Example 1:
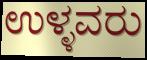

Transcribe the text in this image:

ಉಳ್ಳವರು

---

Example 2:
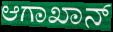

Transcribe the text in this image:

ಆಗಾಖಾನ್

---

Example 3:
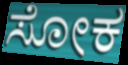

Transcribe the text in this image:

ಸೋಕ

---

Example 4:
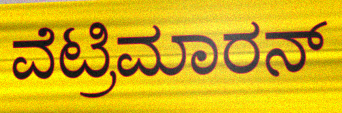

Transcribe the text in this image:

ವೆಟ್ರಿಮಾರನ್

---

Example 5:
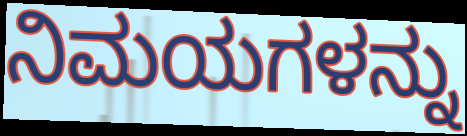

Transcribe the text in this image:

ನಿಮಯಗಳನ್ನು